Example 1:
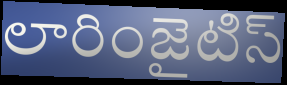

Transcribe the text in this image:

లారింజైటిస్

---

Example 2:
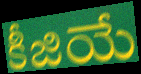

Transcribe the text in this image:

కీజియే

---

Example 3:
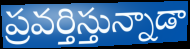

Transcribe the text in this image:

ప్రవర్తిస్తున్నాడా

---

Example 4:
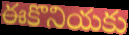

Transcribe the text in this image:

ఈకొనియకు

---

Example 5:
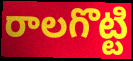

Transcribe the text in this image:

రాలగొట్టి